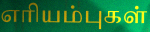
எரியம்புகள்